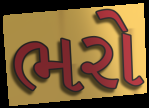
ભરો